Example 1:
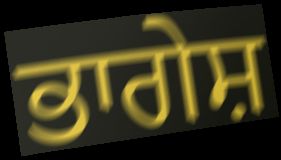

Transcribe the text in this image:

ਭਾਗੇਸ਼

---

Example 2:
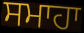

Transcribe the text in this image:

ਸਮਾਹਾ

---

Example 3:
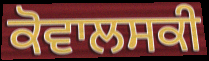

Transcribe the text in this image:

ਕੋਵਾਲਸਕੀ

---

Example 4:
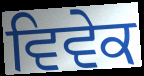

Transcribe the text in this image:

ਵਿਵੇਕ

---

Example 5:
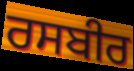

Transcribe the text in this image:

ਰਸਬੀਰ